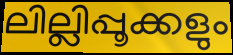
ലില്ലിപ്പൂക്കളും